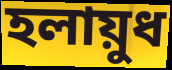
হলায়ুধ